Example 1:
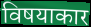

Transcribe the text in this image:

विषयाकार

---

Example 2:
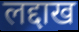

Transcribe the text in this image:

लद्दाख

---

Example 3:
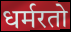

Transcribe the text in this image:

धर्मरतो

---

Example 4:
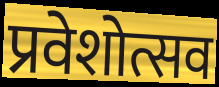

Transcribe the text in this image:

प्रवेशोत्सव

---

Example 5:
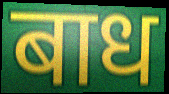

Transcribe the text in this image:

बाध